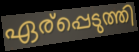
ഏര്പ്പെടുത്തി